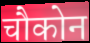
चौकोन